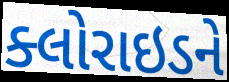
ક્લોરાઇડને